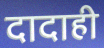
दादाही